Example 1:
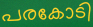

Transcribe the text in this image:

പരകോടി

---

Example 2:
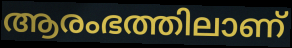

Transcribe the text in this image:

ആരംഭത്തിലാണ്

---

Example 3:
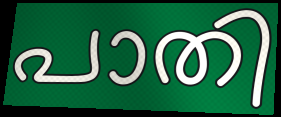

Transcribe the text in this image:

പാതി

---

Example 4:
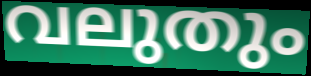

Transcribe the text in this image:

വലുതും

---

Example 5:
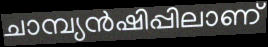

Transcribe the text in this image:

ചാമ്പ്യൻഷിപ്പിലാണ്